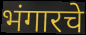
भंगारचे